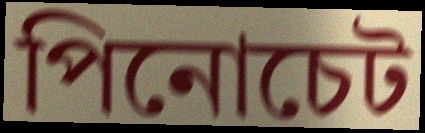
পিনোচেট